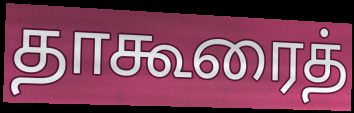
தாகூரைத்